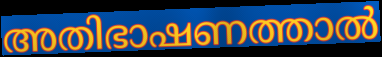
അതിഭാഷണത്താൽ